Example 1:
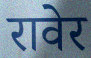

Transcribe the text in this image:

रावेर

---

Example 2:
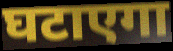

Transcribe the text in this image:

घटाएगा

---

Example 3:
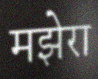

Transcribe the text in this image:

मझेरा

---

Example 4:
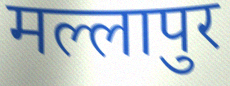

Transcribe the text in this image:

मल्लापुर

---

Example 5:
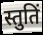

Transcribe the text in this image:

स्तुतिं